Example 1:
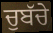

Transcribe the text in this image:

ਚੁਬੱਚੇ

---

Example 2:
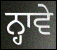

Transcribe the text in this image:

ਨ੍ਹਾਵੇ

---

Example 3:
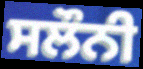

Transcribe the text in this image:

ਸਲੌਨੀ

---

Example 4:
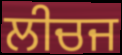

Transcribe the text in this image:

ਲੀਚਜ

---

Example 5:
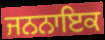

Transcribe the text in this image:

ਜਨਨਾਇਕ